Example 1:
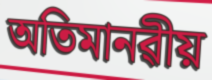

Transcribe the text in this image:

অতিমানৱীয়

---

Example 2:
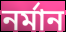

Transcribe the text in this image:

নৰ্মান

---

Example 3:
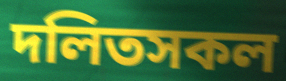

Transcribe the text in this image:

দলিতসকল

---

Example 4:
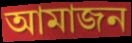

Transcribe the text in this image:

আমাজন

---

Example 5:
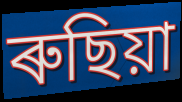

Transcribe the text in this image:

ৰুছিয়া